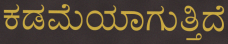
ಕಡಮೆಯಾಗುತ್ತಿದೆ